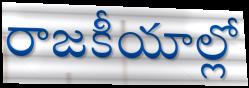
రాజకీయాల్లో